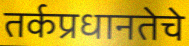
तर्कप्रधानतेचे